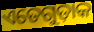
ଏତେଗୁଡ଼ାକ